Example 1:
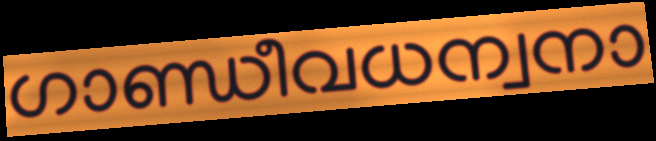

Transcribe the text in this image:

ഗാണ്ഡീവധന്വനാ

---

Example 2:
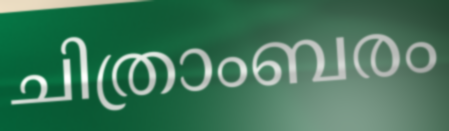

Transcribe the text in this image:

ചിത്രാംബരം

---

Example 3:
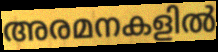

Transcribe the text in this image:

അരമനകളിൽ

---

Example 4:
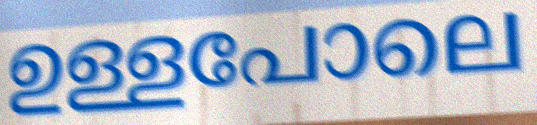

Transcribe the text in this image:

ഉള്ളപോലെ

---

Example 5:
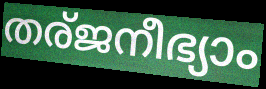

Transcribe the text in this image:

തര്ജനീഭ്യാം